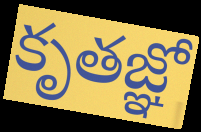
కృతజ్ఞో